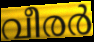
വീരർ